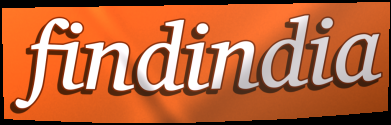
findindia